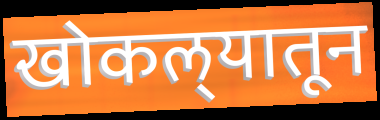
खोकल्यातून